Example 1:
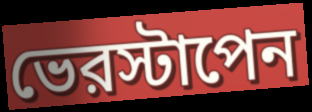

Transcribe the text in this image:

ভেরস্টাপেন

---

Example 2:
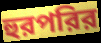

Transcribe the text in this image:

হুরপরির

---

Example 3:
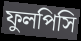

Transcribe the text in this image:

ফুলপিসি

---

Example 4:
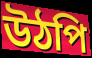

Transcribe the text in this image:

উঠপি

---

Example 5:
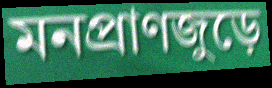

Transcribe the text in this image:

মনপ্রাণজুড়ে